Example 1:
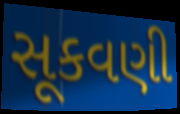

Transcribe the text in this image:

સૂકવણી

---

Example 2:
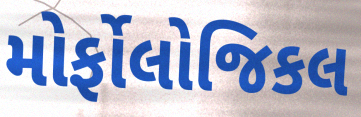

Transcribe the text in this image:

મોર્ફોલોજિકલ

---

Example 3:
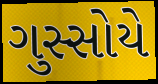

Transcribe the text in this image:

ગુસ્સોયે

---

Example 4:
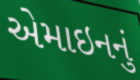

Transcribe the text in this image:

એમાઇનનું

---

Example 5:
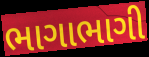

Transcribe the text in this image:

ભાગાભાગી